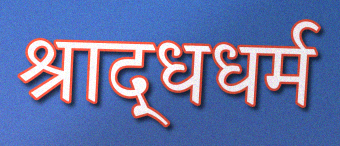
श्राद्धधर्म